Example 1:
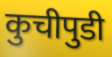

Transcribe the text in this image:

कुचीपुडी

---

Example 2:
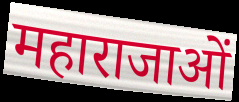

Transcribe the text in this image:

महाराजाओं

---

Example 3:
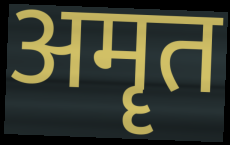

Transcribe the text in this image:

अमॄत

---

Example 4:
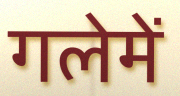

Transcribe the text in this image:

गलेमें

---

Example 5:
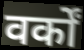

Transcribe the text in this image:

वर्कों